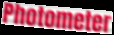
Photometer